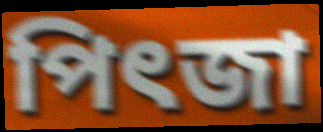
পিৎজা